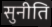
सुनीति